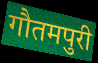
गौतमपुरी